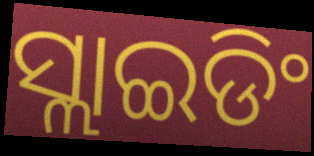
ସ୍ଲାଇଡିଂ